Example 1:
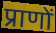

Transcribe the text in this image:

प्राणों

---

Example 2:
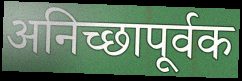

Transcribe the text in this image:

अनिच्छापूर्वक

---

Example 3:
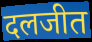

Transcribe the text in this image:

दलजीत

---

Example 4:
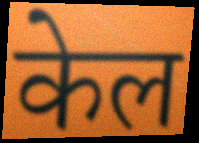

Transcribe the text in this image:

केल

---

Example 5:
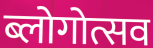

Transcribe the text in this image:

ब्लोगोत्सव